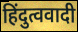
हिंदुत्ववादी